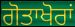
ਗੋਤਾਖੋਰਾਂ